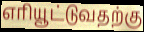
எரியூட்டுவதற்கு